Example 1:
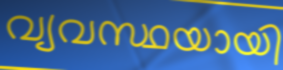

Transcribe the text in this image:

വ്യവസ്ഥയായി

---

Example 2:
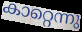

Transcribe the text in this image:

കാറ്റെന്നു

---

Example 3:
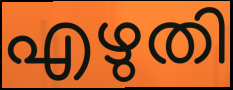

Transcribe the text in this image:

എഴുതി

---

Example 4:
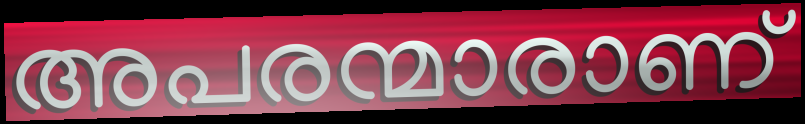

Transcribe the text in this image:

അപരന്മാരാണ്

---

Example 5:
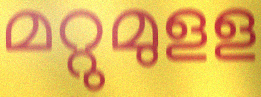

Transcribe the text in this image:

മറ്റുമുളള